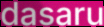
dasaru